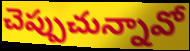
చెప్పుచున్నావో